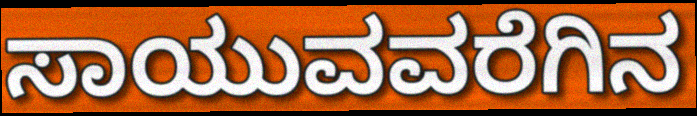
ಸಾಯುವವರೆಗಿನ